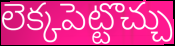
లెక్కపెట్టొచ్చు